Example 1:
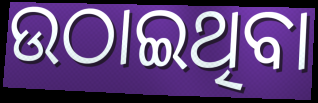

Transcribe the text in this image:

ଉଠାଇଥିବା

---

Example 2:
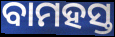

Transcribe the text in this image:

ବାମହସ୍ତ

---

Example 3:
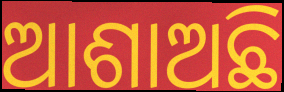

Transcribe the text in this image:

ଆଶାଅଛି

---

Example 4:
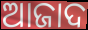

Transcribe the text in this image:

ଆଜାଦ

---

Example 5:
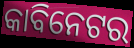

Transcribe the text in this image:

କାବିନେଟର